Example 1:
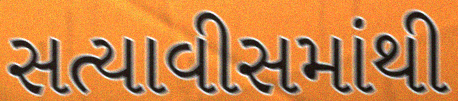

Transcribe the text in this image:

સત્યાવીસમાંથી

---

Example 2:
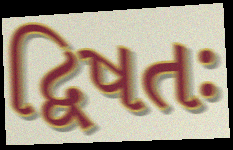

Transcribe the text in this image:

દ્વિષતઃ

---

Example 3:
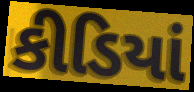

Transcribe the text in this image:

કીડિયાં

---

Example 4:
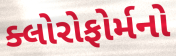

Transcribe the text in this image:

ક્લોરોફોર્મનો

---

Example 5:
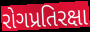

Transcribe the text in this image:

રોગપ્રતિરક્ષા